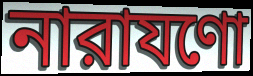
নারাযণো